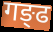
गङ्ढ